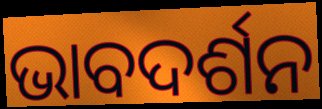
ଭାବଦର୍ଶନ